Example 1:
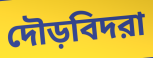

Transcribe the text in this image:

দৌড়বিদরা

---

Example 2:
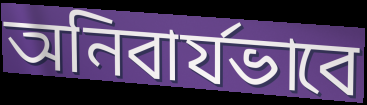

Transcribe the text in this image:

অনিবার্যভাবে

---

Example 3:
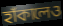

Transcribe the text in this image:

হাঁকালেও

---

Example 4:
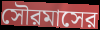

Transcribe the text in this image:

সৌরমাসের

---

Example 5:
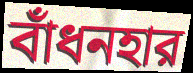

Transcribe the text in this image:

বাঁধনহার